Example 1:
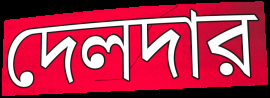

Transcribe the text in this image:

দেলদার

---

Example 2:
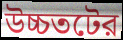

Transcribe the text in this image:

উচ্চতটের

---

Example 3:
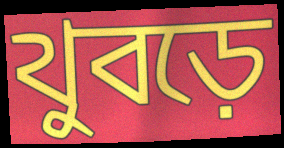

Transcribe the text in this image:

থুবড়ে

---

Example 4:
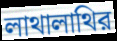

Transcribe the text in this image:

লাথালাথির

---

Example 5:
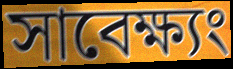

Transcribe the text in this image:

সাবেক্ষ্যং